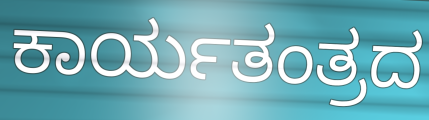
ಕಾರ್ಯತಂತ್ರದ